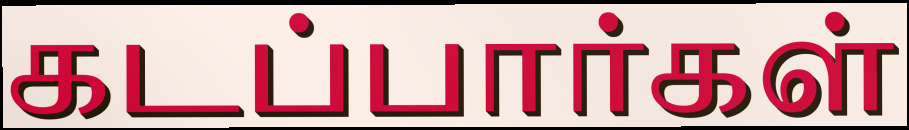
கடப்பார்கள்